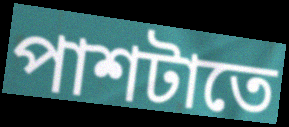
পাশটাতে